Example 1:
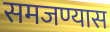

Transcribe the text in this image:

समजण्यास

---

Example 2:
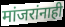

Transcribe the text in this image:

मांजरांनाही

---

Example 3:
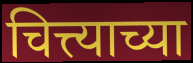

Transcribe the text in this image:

चित्त्याच्या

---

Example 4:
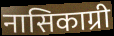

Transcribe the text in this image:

नासिकाग्री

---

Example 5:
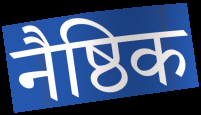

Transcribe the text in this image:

नैष्ठिक